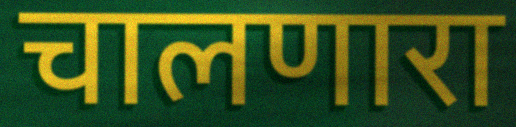
चालणारा